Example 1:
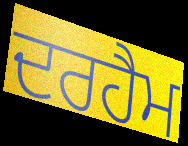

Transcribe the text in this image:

ਦਰਹੈਮ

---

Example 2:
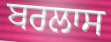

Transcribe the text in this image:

ਬਰਲਾਸ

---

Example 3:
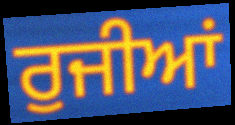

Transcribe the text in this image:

ਰੁਜੀਆਂ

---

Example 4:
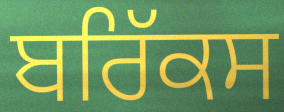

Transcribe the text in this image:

ਬਰਿੱਕਸ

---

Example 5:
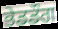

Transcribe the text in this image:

ਭੇਡਡੌਗ